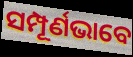
ସମ୍ପୂର୍ଣଭାବେ